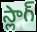
స్లాగ్